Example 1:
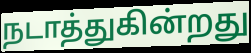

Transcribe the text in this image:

நடாத்துகின்றது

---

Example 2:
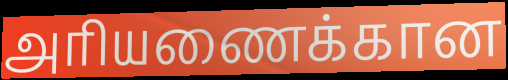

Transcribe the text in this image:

அரியணைக்கான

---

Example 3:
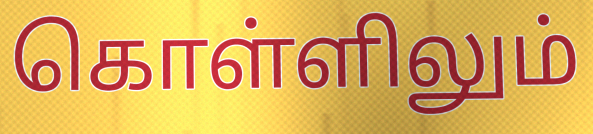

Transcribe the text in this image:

கொள்ளிலும்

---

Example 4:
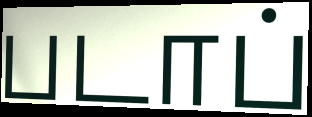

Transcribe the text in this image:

படாப்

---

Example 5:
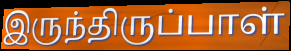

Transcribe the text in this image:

இருந்திருப்பாள்